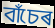
বাঁচেৰ